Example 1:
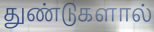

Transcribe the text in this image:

துண்டுகளால்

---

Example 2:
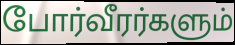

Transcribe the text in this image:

போர்வீரர்களும்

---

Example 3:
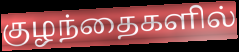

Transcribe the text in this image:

குழந்தைகளில்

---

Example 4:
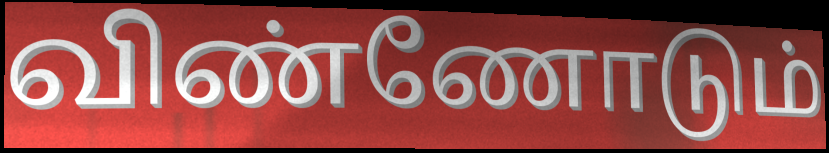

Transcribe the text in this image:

விண்ணோடும்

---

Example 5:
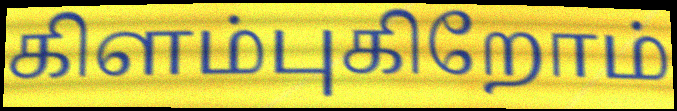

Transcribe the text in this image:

கிளம்புகிறோம்